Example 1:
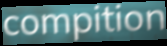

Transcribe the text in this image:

compition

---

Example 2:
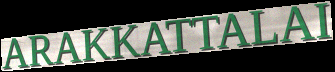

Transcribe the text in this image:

ARAKKATTALAI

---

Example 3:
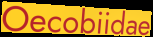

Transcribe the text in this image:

Oecobiidae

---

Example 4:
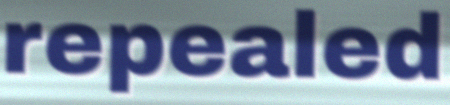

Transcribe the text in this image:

repealed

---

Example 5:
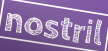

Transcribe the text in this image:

nostril